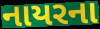
નાયરના